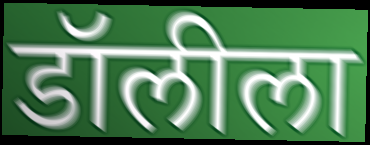
डॉलीला